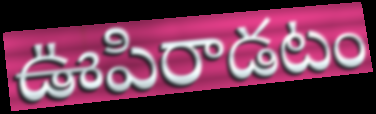
ఊపిరాడటం